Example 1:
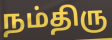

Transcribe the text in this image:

நம்திரு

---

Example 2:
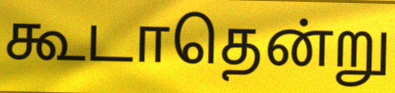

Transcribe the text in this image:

கூடாதென்று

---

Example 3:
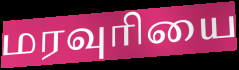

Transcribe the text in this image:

மரவுரியை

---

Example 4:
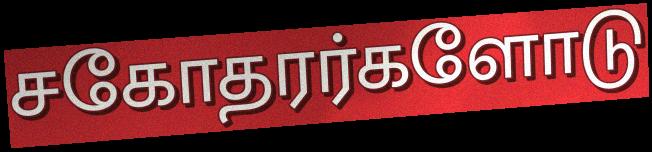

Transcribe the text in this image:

சகோதரர்களோடு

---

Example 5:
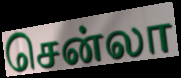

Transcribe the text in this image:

சென்லா